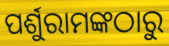
ପର୍ଶୁରାମଙ୍କଠାରୁ